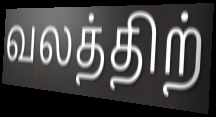
வலத்திற்